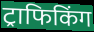
ट्राफिकिंग